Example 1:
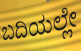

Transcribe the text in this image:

ಬದಿಯಲ್ಲೇ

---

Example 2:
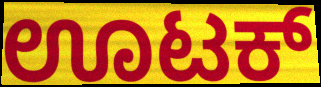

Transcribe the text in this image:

ಊಟಕ್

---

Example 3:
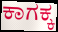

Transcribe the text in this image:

ಕಾಗಕ್ಕ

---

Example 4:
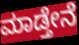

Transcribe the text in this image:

ಮಾಡ್ತೇನೆ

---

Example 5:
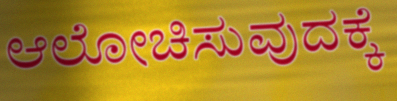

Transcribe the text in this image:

ಆಲೋಚಿಸುವುದಕ್ಕೆ